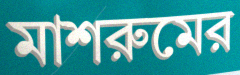
মাশরুমের